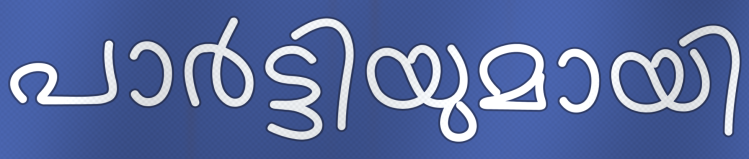
പാർട്ടിയുമായി